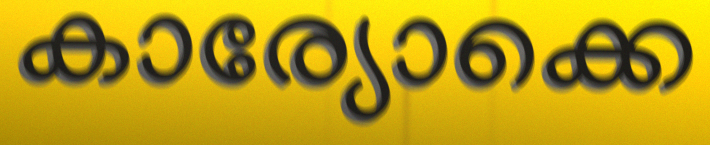
കാര്യോക്കെ